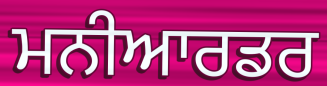
ਮਨੀਆਰਡਰ